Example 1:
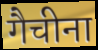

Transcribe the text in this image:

गैचीना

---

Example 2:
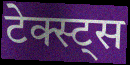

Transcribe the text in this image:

टेक्स्ट्स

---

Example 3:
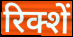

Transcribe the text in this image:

रिक्शें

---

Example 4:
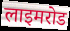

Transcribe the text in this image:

लाइमरोड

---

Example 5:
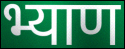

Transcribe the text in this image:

भ्याण